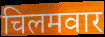
चिलमवार